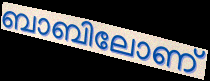
ബാബിലോണ്